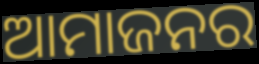
ଆମାଜନର